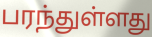
பரந்துள்ளது